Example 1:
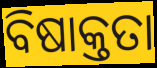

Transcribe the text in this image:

ବିଷାକ୍ତତା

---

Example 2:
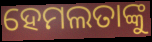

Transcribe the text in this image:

ହେମଲତାଙ୍କୁ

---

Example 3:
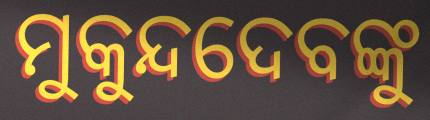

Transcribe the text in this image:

ମୁକୁନ୍ଦଦେବଙ୍କୁ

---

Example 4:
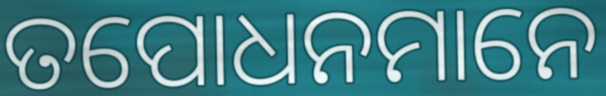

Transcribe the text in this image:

ତପୋଧନମାନେ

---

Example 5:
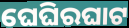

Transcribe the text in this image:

ଘେଘିରଘାଟ